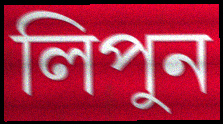
লিপুন